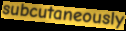
subcutaneously